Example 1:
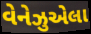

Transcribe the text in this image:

વેનેઝુએલા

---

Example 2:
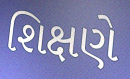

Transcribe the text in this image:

શિક્ષણે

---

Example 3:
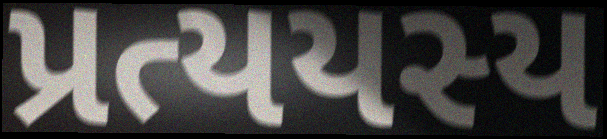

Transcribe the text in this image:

પ્રત્યયસ્ય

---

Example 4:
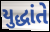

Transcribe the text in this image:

યુદ્ધાંતે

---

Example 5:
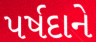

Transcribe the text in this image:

પર્ષદાને